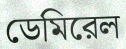
ডেমিরেল